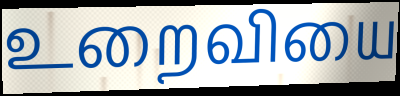
உறைவியை